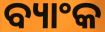
ବ୍ୟାଂକ